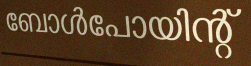
ബോൾപോയിന്റ്